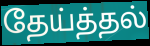
தேய்த்தல்